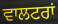
ਵਾਲਟਰਾਂ